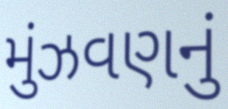
મુંઝવણનું